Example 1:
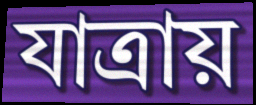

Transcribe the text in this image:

যাত্রায়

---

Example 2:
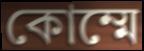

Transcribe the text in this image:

কোম্মে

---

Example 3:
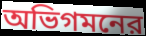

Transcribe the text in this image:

অভিগমনের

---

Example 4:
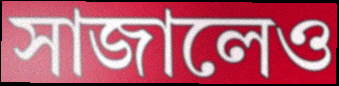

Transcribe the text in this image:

সাজালেও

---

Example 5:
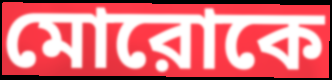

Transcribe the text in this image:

মোরোকে